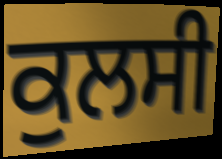
ਕੁਲਸੀ